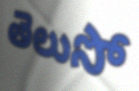
తెలుసో